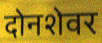
दोनशेवर